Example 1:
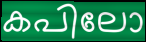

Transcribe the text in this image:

കപിലോ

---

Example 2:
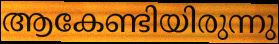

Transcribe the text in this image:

ആകേണ്ടിയിരുന്നു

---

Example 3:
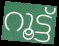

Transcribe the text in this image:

റൂട്ട്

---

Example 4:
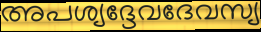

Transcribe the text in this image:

അപശ്യദ്ദേവദേവസ്യ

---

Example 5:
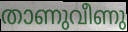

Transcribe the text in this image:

താണുവീണു